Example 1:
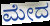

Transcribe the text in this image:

ಮೇದ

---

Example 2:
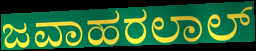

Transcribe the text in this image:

ಜವಾಹರಲಾಲ್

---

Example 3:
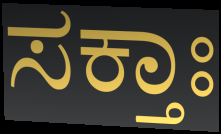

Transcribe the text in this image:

ಸಕ್ತಾಃ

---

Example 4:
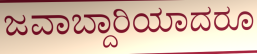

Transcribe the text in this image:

ಜವಾಬ್ದಾರಿಯಾದರೂ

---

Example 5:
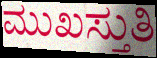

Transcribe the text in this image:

ಮುಖಸ್ತುತಿ